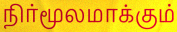
நிர்மூலமாக்கும்